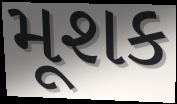
મૂશક